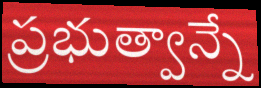
ప్రభుత్వాన్నే